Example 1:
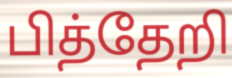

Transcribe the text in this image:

பித்தேறி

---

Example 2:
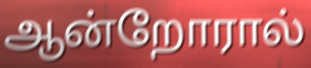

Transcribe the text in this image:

ஆன்றோரால்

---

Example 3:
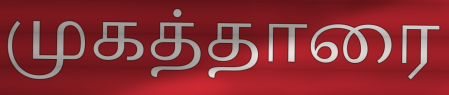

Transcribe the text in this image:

முகத்தாரை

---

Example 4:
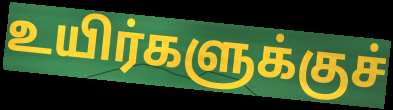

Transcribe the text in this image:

உயிர்களுக்குச்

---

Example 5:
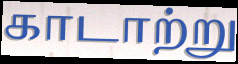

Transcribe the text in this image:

காடாற்று